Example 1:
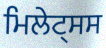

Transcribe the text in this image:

ਮਿਲੇਟ੍ਸਸ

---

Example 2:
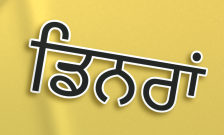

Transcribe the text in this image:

ਡਿਨਰਾਂ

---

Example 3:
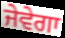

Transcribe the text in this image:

ਜੇਵੇਗਾ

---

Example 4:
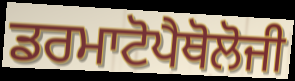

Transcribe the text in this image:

ਡਰਮਾਟੋਪੈਥੋਲੋਜੀ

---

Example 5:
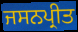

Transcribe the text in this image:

ਜਸਨਪ੍ਰੀਤ